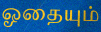
ஓதையும்